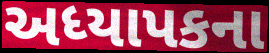
અધ્યાપકના